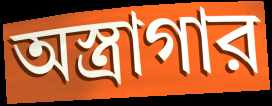
অস্ত্রাগার